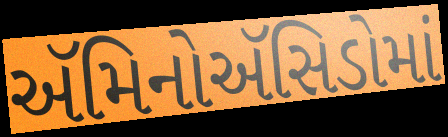
ઍમિનોઍસિડોમાં